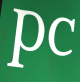
pc